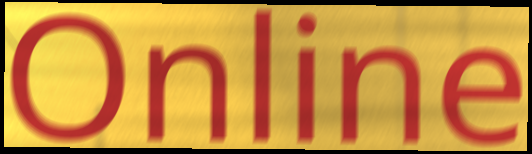
Online